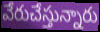
వేరుచేస్తున్నారు